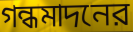
গন্ধমাদনের